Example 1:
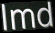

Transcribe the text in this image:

Imd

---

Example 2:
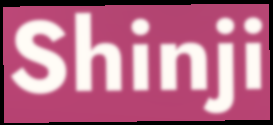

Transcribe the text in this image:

Shinji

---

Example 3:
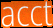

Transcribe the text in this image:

acct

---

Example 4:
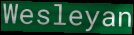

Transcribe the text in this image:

Wesleyan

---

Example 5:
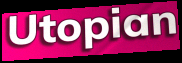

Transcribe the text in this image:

Utopian